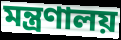
মন্ত্রণালয়